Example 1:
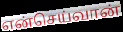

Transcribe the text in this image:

என்செய்வான்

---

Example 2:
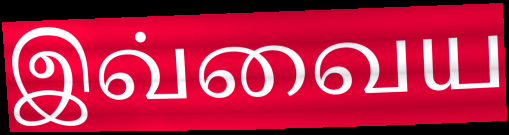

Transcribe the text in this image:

இவ்வைய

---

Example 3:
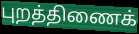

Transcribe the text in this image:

புறத்திணைக்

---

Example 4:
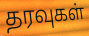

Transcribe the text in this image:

தரவுகள்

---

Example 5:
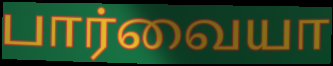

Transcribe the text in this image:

பார்வையா